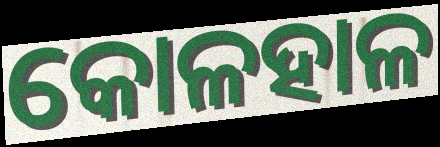
କୋଳହାଳ